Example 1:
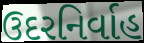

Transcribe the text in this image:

ઉદરનિર્વાહ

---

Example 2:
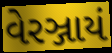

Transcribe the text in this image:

વેરઞ્જાયં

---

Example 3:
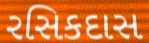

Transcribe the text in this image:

રસિકદાસ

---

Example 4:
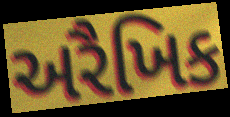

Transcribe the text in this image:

અરૈખિક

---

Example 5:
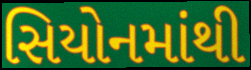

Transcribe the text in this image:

સિયોનમાંથી